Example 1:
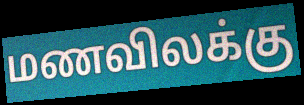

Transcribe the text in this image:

மணவிலக்கு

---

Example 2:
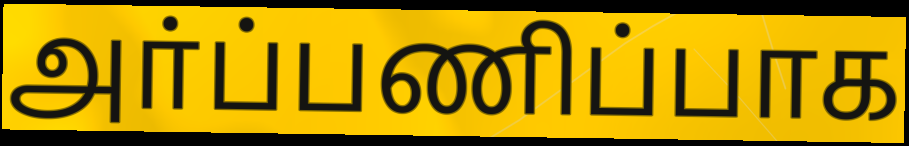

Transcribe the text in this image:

அர்ப்பணிப்பாக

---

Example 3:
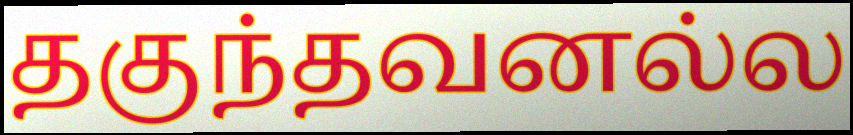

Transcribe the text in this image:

தகுந்தவனல்ல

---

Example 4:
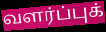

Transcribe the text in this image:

வளர்ப்புக்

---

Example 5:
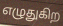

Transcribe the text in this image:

எழுதுகிற